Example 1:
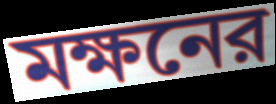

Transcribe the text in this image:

মক্ষনের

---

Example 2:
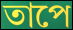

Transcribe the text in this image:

তাপে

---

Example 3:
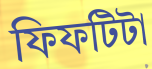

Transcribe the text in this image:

ফিফটিটা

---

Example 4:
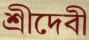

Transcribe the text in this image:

শ্রীদেবী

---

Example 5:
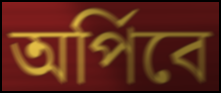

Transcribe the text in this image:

অর্পিবে